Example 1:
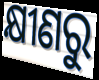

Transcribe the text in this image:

କ୍ଷୀଣରୁ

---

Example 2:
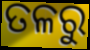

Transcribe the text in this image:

ତଳରୁ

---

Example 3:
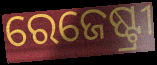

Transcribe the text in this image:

ରେଜେଷ୍ଟ୍ରୀ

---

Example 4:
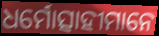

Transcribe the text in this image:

ଧର୍ମୋତ୍ସାହୀମାନେ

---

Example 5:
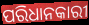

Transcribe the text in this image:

ପରିଧାନକାରୀ